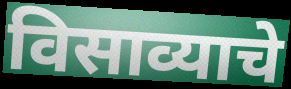
विसाव्याचे